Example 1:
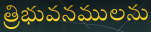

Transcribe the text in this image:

త్రిభువనములను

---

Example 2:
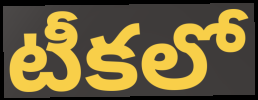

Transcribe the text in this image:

టీకలో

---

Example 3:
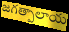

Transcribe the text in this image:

జగత్పాలాయ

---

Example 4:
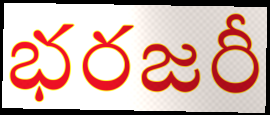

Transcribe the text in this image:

భరజరీ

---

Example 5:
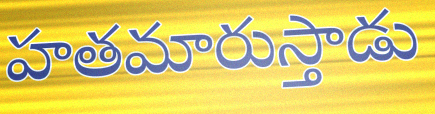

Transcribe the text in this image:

హతమారుస్తాడు